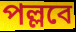
পল্লবে